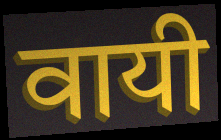
वायी